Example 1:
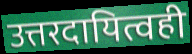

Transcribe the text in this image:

उत्तरदायित्वही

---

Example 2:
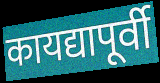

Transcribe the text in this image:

कायद्यापूर्वी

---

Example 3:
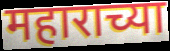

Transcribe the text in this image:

महाराच्या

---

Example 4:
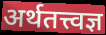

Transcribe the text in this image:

अर्थतत्त्वज्ञ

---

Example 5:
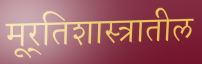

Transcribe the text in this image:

मूर्तिशास्त्रातील